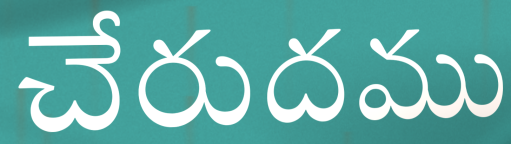
చేరుదము